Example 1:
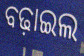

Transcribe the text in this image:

ବଢ଼ାଇଲ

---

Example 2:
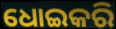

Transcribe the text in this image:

ଧୋଇକରି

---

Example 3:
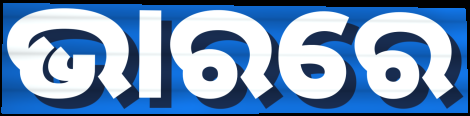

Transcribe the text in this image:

ଭାରରେ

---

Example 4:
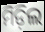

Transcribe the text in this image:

ମିଡ଼ିଲ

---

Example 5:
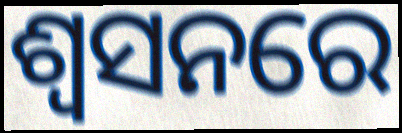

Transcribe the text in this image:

ଶ୍ଵସନରେ